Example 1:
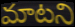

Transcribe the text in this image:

మాటని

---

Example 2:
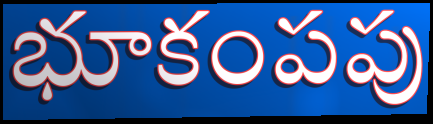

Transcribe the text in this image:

భూకంపపు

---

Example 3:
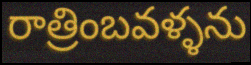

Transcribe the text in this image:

రాత్రింబవళ్ళను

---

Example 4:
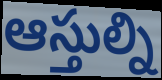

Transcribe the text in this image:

ఆస్తుల్ని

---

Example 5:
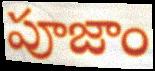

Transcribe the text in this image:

పూజాం